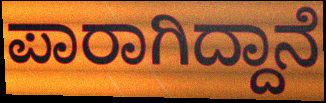
ಪಾರಾಗಿದ್ದಾನೆ